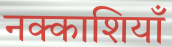
नक्काशियाँ